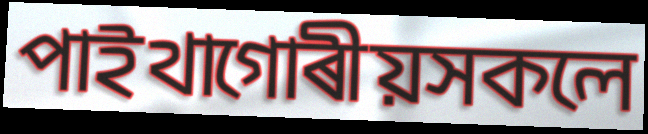
পাইথাগোৰীয়সকলে